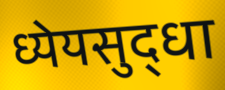
ध्येयसुद्धा